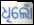
ଧିଲୋଁ